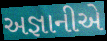
અજ્ઞાનીએ